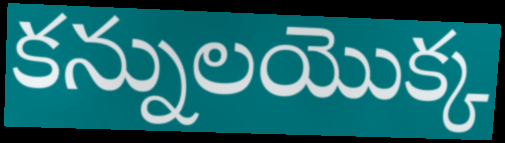
కన్నులయొక్క